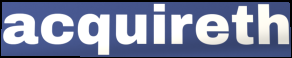
acquireth